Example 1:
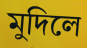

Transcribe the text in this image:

মুদিলে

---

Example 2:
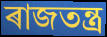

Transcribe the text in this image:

ৰাজতন্ত্ৰ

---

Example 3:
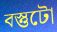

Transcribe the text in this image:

বস্তুটো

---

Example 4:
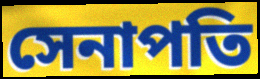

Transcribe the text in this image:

সেনাপতি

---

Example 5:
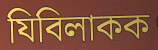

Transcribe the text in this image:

যিবিলাকক